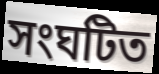
সংঘটিত